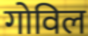
गोविल